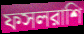
ফসলরাশি